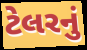
ટેલરનું